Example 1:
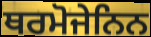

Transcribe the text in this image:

ਥਰਮੋਜੇਨਿਨ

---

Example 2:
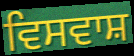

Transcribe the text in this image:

ਵਿਸਵਾਸ਼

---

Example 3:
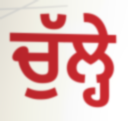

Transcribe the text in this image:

ਚੁੱਲ੍ਹੇ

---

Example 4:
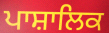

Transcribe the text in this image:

ਪਾਸ਼ਾਲਿਕ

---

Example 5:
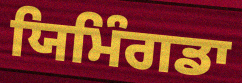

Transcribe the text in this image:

ਯਿਮਿੰਗਡਾ